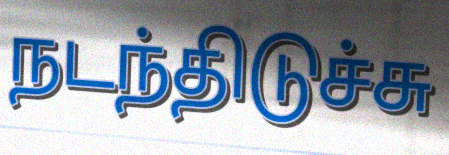
நடந்திடுச்சு